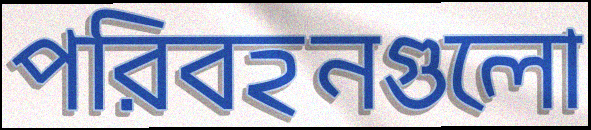
পরিবহনগুলো